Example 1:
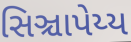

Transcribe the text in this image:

સિઞ્ચાપેય્ય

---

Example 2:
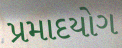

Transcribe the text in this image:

પ્રમાદયોગ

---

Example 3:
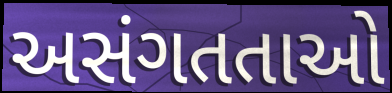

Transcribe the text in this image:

અસંગતતાઓ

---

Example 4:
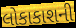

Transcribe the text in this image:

લોકાકાશની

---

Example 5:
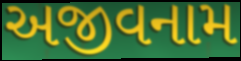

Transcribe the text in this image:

અજીવનામ